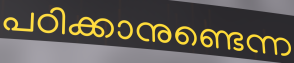
പഠിക്കാനുണ്ടെന്ന